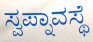
ಸ್ವಪ್ನಾವಸ್ಥೆ